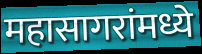
महासागरांमध्ये